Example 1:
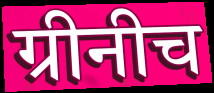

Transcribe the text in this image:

ग्रीनीच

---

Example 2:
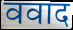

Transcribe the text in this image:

ववाद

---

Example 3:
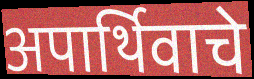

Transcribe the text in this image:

अपार्थिवाचे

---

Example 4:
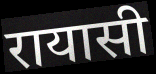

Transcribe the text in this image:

रायासी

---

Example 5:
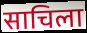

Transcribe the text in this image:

साचिला